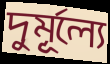
দুর্মূল্যে